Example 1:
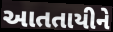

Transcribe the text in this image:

આતતાયીને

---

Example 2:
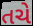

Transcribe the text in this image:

તચે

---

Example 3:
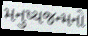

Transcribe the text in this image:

મનુષ્યજન્મનો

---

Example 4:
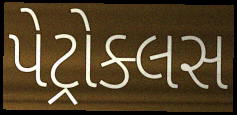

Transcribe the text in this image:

પેટ્રોક્લસ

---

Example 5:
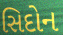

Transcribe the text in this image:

સિદોન